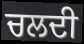
ਚਲਦੀ